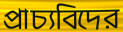
প্রাচ্যবিদের